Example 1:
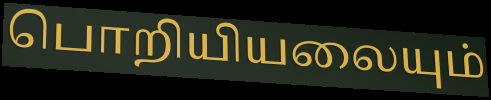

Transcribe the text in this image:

பொறியியலையும்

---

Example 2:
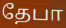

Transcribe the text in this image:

தேபா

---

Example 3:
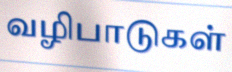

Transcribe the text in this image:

வழிபாடுகள்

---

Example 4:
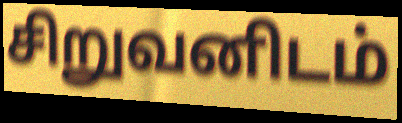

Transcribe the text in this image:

சிறுவனிடம்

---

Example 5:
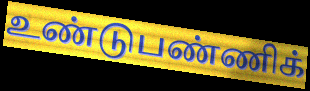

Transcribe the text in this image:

உண்டுபண்ணிக்